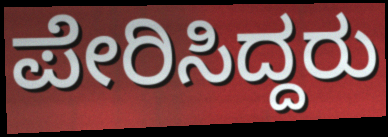
ಪೇರಿಸಿದ್ದರು